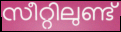
സീറ്റിലുണ്ട്